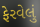
ફેરવેલું